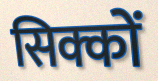
सिक्‍कों